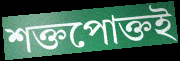
শক্তপোক্তই